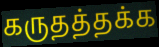
கருதத்தக்க